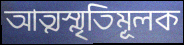
আত্মস্মৃতিমূলক